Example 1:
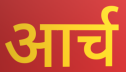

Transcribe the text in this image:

आर्च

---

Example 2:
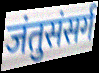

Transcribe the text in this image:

जंतुसंसर्ग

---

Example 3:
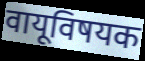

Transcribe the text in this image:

वायूविषयक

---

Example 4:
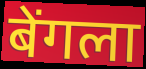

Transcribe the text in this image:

बेंगला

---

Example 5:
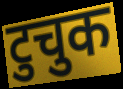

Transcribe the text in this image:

टुचुक